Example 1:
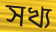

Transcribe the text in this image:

সখ্য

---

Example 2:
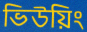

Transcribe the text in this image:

ভিউয়িং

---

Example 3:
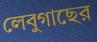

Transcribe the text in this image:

লেবুগাছের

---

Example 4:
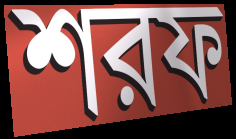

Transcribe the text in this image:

শরফ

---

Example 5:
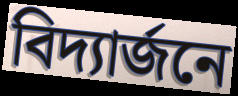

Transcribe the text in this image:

বিদ্যার্জনে